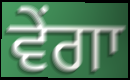
ਵੇਂਗਾ